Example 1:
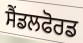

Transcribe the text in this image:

ਸੈਂਡਲਫੋਰਡ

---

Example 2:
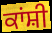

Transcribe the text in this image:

ਕਾਂਸ਼ੀ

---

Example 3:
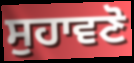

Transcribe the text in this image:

ਸੁਹਾਵਣੋ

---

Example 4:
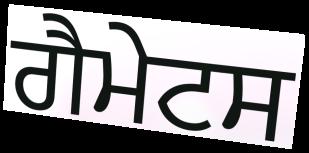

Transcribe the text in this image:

ਗੈਮੇਟਸ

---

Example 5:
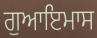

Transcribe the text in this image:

ਗੁਆਇਮਾਸ